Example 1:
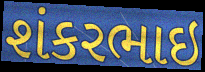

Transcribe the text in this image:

શંકરભાઇ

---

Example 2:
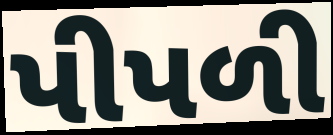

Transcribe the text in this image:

પીપળી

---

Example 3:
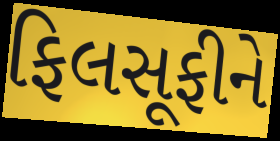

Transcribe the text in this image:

ફિલસૂફીને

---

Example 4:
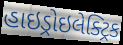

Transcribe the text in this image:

હાઇડ્રોઇલેક્ટ્રિક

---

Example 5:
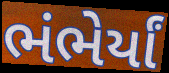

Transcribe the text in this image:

ભંભેર્યાં